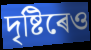
দৃষ্টিৰেও